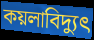
কয়লাবিদ্যুৎ